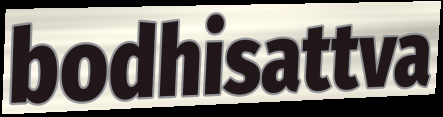
bodhisattva